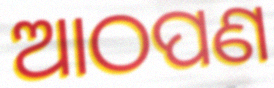
ଆଠପଣ